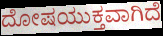
ದೋಷಯುಕ್ತವಾಗಿದೆ